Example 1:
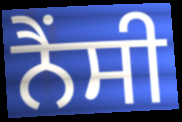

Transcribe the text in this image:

ਨੈਂਸੀ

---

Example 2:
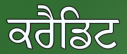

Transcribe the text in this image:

ਕਰੈਡਿਟ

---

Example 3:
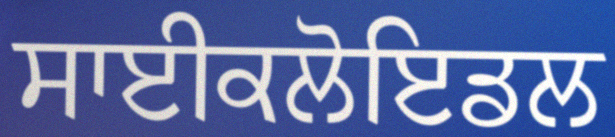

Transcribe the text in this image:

ਸਾਈਕਲੋਇਡਲ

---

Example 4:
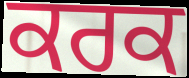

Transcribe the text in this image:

ਕਰਕ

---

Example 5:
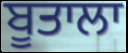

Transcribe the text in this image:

ਬੂਤਾਲਾ